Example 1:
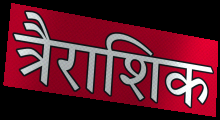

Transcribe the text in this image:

त्रैराशिक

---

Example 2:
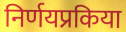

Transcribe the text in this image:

निर्णयप्रकिया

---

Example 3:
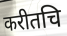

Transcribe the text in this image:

करीतचि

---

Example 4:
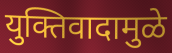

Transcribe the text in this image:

युक्तिवादामुळे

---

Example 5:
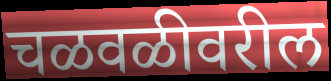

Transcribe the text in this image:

चळवळीवरील